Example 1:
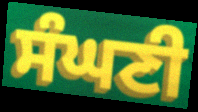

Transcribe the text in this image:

ਸੰਘਣੀ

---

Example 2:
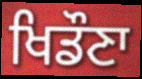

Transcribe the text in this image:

ਖਿਡੌਣਾ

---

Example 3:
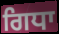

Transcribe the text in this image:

ਗਿਧਾ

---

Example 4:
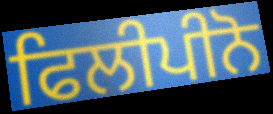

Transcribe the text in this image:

ਫਿਲੀਪੀਨੋ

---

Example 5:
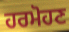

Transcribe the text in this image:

ਹਰਮੋਹਣ